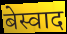
बेस्वाद